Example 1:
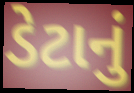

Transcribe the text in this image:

ડેટાનું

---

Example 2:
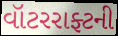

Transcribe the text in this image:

વૉટરરાફ્ટની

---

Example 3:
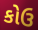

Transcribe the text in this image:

કોઉ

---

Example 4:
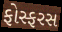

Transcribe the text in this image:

ફોસ્ફરસ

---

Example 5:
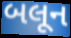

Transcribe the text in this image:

બલૂન